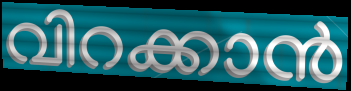
വിറക്കാൻ